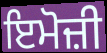
ਇਮੋਜ਼ੀ